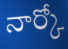
నార్కో